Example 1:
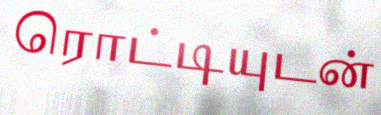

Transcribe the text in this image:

ரொட்டியுடன்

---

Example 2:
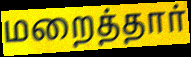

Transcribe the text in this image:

மறைத்தார்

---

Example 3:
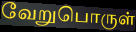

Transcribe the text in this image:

வேறுபொருள்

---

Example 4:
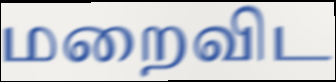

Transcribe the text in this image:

மறைவிட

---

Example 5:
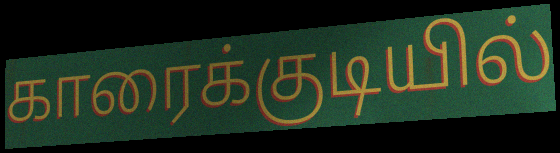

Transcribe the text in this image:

காரைக்குடியில்